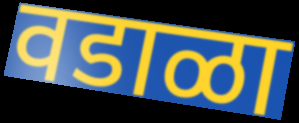
वडाळा